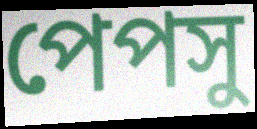
পেপসু